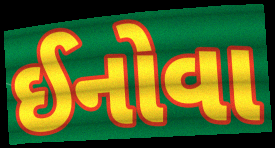
ઈનોવા